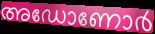
അഡോണോർ